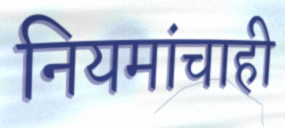
नियमांचाही